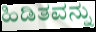
ಹಿಡಿತವನ್ನು